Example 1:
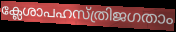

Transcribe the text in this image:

ക്ലേശാപഹസ്ത്രിജഗതാം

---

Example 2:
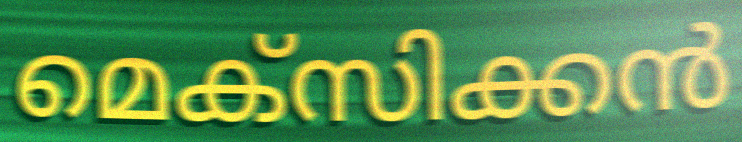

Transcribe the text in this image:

മെക്സിക്കൻ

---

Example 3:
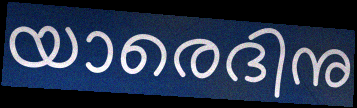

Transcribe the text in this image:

യാരെദിനു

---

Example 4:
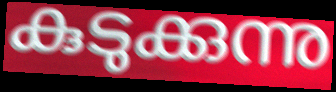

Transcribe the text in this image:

കുടുക്കുന്നു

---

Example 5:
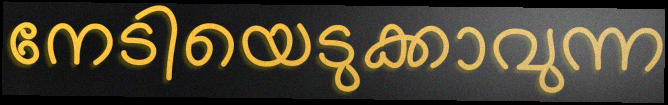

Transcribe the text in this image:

നേടിയെടുക്കാവുന്ന